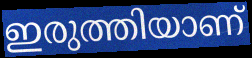
ഇരുത്തിയാണ്